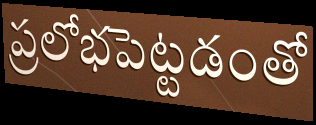
ప్రలోభపెట్టడంతో